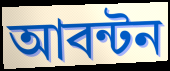
আবন্টন